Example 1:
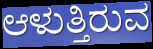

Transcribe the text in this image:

ಆಳುತ್ತಿರುವ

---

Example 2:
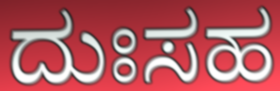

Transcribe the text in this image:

ದುಃಸಹ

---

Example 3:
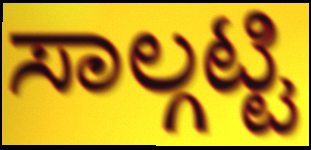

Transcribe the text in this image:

ಸಾಲ್ಗಟ್ಟಿ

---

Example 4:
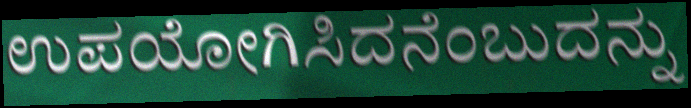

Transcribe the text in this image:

ಉಪಯೋಗಿಸಿದನೆಂಬುದನ್ನು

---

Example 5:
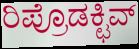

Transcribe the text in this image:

ರಿಪ್ರೊಡಕ್ಟಿವ್